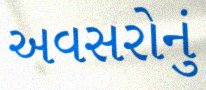
અવસરોનું